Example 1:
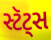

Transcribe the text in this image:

સ્ટૅટ્સ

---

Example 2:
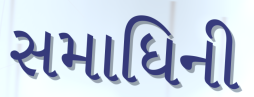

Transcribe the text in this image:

સમાધિની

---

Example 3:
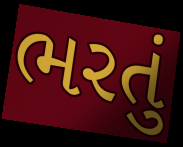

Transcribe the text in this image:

ભરતું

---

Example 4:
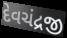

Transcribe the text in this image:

દેવચંદ્રજી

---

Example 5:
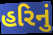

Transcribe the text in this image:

હરિનું